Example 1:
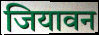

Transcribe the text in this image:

जियावन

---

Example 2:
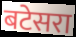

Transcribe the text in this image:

बटेसरा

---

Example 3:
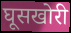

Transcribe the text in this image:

घूसखोरी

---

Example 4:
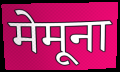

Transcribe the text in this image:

मेमूना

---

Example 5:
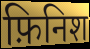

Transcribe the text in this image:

फ़िनिश